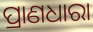
ପ୍ରାଣଧାରା